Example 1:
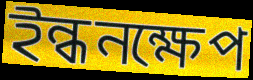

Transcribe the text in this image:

ইন্ধনক্ষেপ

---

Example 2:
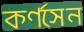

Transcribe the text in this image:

কর্ণসেন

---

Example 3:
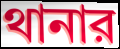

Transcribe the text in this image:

থানার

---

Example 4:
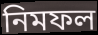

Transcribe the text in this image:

নিমফল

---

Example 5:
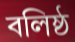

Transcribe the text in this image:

বলিষ্ঠ